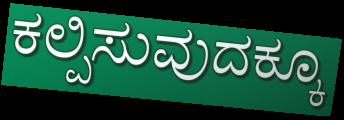
ಕಲ್ಪಿಸುವುದಕ್ಕೂ